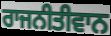
ਰਾਜਨੀਤੀਵਾਨ